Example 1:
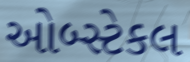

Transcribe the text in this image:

ઓબ્સ્ટેકલ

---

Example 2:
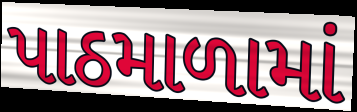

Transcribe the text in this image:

પાઠમાળામાં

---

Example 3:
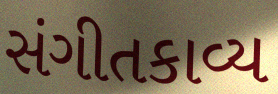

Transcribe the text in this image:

સંગીતકાવ્ય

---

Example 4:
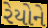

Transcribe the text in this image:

રેયોને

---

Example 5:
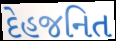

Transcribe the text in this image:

દેહજનિત